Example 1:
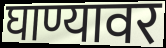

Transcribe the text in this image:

घाण्यावर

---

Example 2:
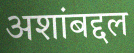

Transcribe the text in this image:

अशांबद्दल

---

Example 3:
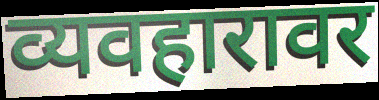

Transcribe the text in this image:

व्यवहारावर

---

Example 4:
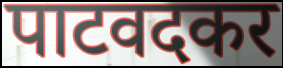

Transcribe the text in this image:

पाटवदकर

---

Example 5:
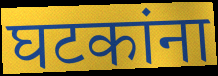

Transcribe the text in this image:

घटकांना